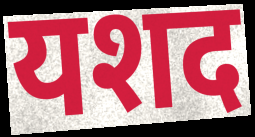
यशद